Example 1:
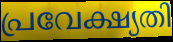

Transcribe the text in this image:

പ്രവേക്ഷ്യതി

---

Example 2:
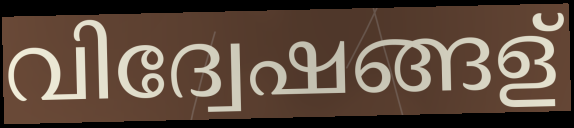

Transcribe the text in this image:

വിദ്വേഷങ്ങള്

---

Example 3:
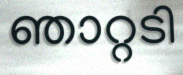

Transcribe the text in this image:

ഞാറ്റടി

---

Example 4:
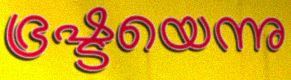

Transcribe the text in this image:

ഭ്രഷ്ടയെന്നു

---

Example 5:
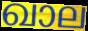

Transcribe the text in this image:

ഖാല